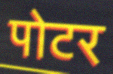
पोटर